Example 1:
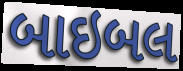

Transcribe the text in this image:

બાઇબલ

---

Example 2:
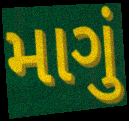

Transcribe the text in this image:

માગું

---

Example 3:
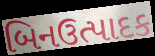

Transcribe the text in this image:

બિનઉત્પાદક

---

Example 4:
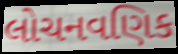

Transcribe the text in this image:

લોચનવણિક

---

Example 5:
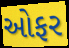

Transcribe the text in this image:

ઓફર